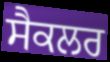
ਸੈਕਲਰ